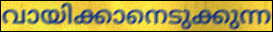
വായിക്കാനെടുക്കുന്ന